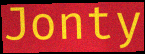
Jonty